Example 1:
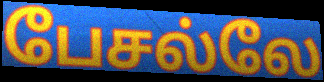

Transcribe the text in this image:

பேசல்லே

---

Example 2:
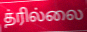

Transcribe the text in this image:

த்ரில்லை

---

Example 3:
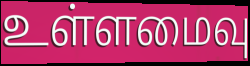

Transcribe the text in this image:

உள்ளமைவு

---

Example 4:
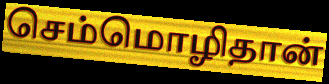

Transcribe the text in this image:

செம்மொழிதான்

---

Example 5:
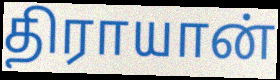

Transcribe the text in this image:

திராயான்